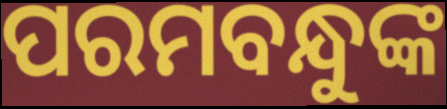
ପରମବନ୍ଧୁଙ୍କ